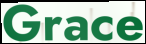
Grace